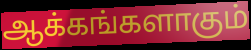
ஆக்கங்களாகும்